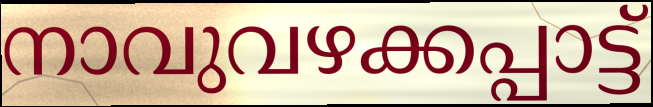
നാവുവഴക്കപ്പാട്ട്